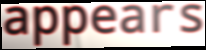
appears